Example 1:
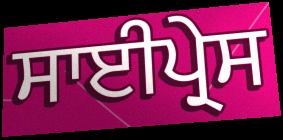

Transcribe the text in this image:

ਸਾਈਪ੍ਰੇਸ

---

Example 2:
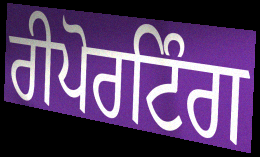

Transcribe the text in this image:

ਰੀਪੋਰਟਿੰਗ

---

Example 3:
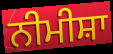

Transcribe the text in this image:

ਨੀਮੀਸ਼ਾ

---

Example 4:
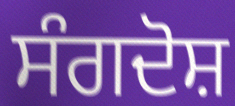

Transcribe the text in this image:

ਸੰਗਦੋਸ਼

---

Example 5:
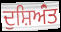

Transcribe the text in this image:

ਦੁਸ਼ਿਅਂੰਤ